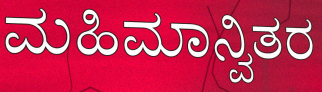
ಮಹಿಮಾನ್ವಿತರ